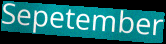
Sepetember